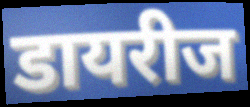
डायरीज